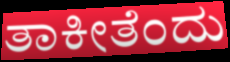
ತಾಕೀತೆಂದು